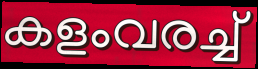
കളംവരച്ച്